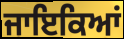
ਜਾਇਕਿਆਂ